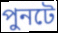
পুনটে